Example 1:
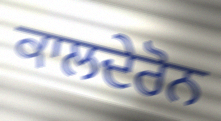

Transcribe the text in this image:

ਕਾਲਦੇਰੋਨ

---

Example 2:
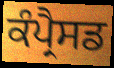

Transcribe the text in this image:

ਕੰਪ੍ਰੈਸਡ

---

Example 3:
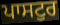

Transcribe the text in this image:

ਪਾਸਟੁਰ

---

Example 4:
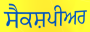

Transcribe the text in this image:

ਸੈਕਸ਼ਪੀਅਰ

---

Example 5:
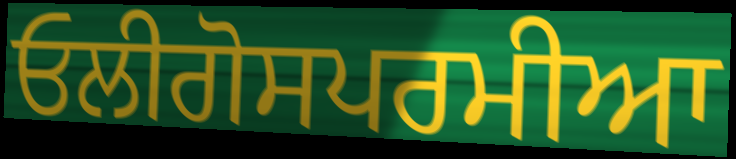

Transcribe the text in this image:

ਓਲੀਗੋਸਪਰਮੀਆ